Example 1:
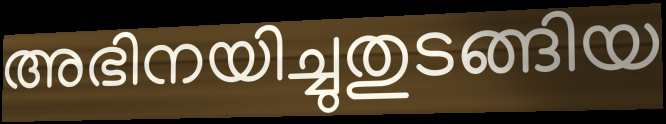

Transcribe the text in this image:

അഭിനയിച്ചുതുടങ്ങിയ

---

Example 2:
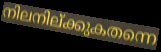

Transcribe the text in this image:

നിലനില്ക്കുകതന്നെ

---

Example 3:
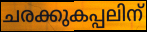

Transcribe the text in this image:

ചരക്കുകപ്പലിന്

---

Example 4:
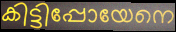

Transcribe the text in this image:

കിട്ടിപ്പോയേനെ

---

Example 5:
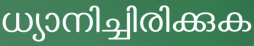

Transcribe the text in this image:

ധ്യാനിച്ചിരിക്കുക